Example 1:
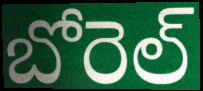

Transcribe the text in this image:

బోరెల్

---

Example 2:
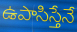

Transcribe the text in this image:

ఉపాసిస్తేనే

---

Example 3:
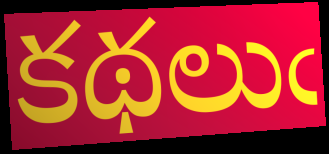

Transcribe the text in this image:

కథలుఁ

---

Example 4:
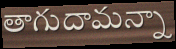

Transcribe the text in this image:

తాగుదామన్నా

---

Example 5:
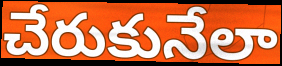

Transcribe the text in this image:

చేరుకునేలా